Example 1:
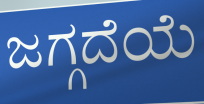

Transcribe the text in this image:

ಜಗ್ಗದೆಯೆ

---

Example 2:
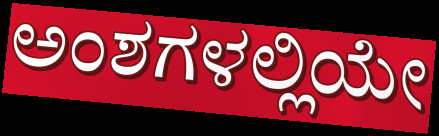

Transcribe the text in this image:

ಅಂಶಗಳಲ್ಲಿಯೇ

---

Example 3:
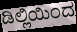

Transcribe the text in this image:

ಡಿಲ್ಲಿಯಿಂದ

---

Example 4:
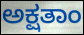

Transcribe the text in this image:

ಅಕ್ಷತಾಂ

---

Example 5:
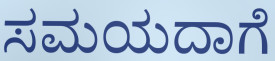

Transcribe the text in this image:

ಸಮಯದಾಗೆ